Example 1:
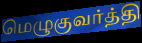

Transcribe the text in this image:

மெழுகுவர்த்தி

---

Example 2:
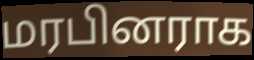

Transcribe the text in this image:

மரபினராக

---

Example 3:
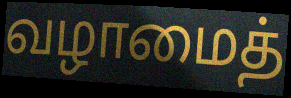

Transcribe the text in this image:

வழாமைத்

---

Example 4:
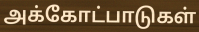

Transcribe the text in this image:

அக்கோட்பாடுகள்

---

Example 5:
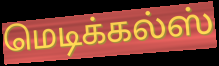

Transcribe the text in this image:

மெடிக்கல்ஸ்